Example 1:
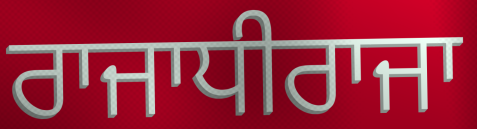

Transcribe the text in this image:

ਰਾਜਾਧੀਰਾਜਾ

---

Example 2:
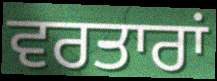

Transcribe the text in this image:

ਵਰਤਾਰਾਂ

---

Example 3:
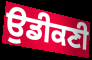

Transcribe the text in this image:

ਉਡੀਕਣੀ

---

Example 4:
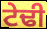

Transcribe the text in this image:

ਟੇਢੀ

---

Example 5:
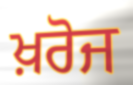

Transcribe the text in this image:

ਖ਼ਰੋਜ